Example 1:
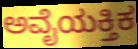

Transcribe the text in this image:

ಅವೈಯಕ್ತಿಕ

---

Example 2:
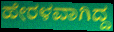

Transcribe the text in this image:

ಹೇರಳವಾಗಿದ್ದ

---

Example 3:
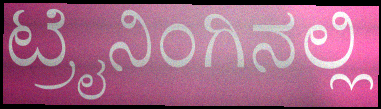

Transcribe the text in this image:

ಟ್ರೈನಿಂಗಿನಲ್ಲಿ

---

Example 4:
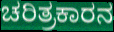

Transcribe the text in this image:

ಚರಿತ್ರಕಾರನ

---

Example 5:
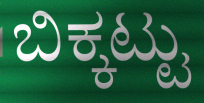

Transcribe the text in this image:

ಬಿಕ್ಕಟ್ಟು